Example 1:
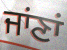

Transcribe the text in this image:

ਜਾਂਣਾਂ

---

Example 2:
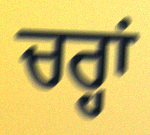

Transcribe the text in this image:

ਚਰ੍ਹਾਂ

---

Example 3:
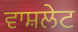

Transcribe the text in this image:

ਵਾਸ਼ਲੇਟ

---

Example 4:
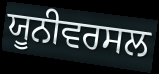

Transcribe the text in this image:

ਯੂਨੀਵਰਸਲ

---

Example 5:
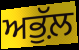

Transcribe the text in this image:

ਅਭੁੱਲ਼